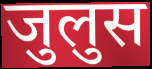
जुलुस